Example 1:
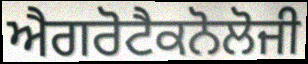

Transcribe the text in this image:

ਐਗਰੋਟੈਕਨੋਲੋਜੀ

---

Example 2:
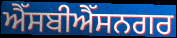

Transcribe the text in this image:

ਐੱਸਬੀਐੱਸਨਗਰ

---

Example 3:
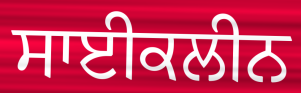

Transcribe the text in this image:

ਸਾਈਕਲੀਨ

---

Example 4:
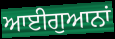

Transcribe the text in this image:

ਆਈਗੁਆਨਾਂ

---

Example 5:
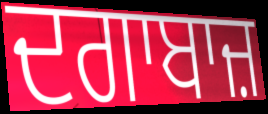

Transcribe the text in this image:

ਦਗਾਬਾਜ਼